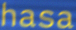
hasa